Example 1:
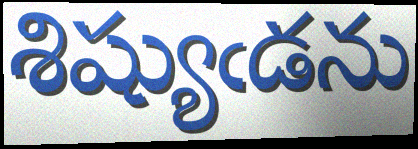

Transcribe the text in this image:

శిష్యుఁడను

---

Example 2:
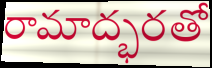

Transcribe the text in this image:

రామాద్భరతో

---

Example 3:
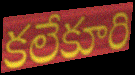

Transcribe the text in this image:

కలేకూరి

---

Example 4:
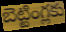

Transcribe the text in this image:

బెట్టింగ్లకు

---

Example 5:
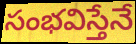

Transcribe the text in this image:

సంభవిస్తేనే